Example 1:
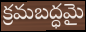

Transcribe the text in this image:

క్రమబద్ధమై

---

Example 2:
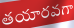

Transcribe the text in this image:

తయారవగా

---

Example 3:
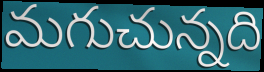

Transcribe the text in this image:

మగుచున్నది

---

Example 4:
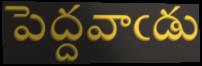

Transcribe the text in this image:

పెద్దవాఁడు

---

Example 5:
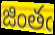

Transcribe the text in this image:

జింతఁ